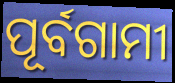
ପୂର୍ବଗାମୀ